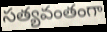
సత్యవంతంగా